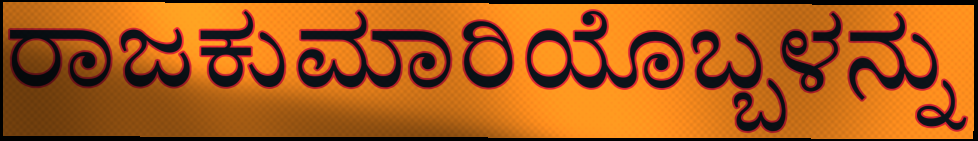
ರಾಜಕುಮಾರಿಯೊಬ್ಬಳನ್ನು